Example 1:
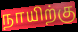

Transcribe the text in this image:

நாயிற்கு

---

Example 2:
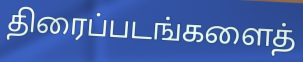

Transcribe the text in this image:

திரைப்படங்களைத்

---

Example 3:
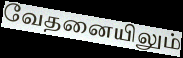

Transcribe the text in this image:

வேதனையிலும்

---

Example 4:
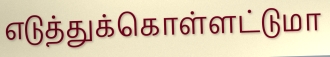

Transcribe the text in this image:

எடுத்துக்கொள்ளட்டுமா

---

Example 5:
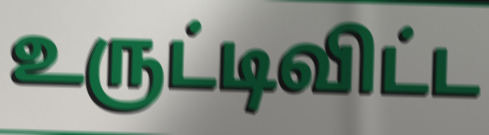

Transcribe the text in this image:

உருட்டிவிட்ட